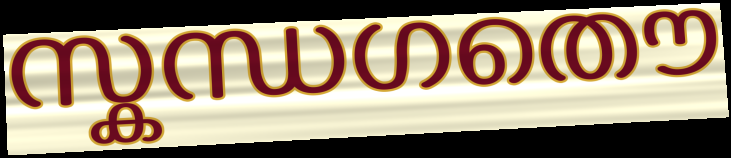
സ്കന്ധഗതൌ